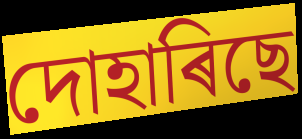
দোহাৰিছে